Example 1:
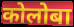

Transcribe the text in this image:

कोलोबा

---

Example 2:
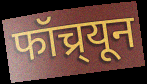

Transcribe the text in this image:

फॉच्र्यून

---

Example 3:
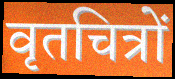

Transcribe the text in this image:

वृतचित्रों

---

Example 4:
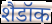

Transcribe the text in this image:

शैडॉक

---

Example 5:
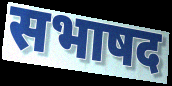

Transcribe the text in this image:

सभाषद